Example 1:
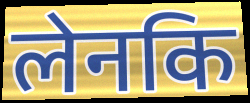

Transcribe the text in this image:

लेनकि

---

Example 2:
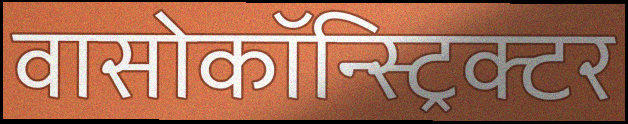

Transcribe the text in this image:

वासोकॉन्स्ट्रिक्टर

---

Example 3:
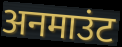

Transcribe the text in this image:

अनमाउंट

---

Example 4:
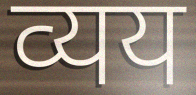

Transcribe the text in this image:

व्यय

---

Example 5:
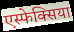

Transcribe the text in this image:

एस्फेक्सिया